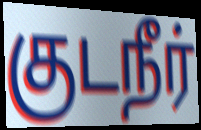
குடநீர்